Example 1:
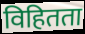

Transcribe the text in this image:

विहितता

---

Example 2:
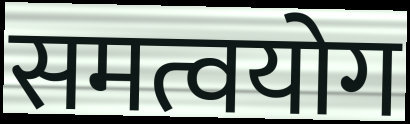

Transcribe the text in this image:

समत्वयोग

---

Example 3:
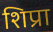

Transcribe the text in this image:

शिप्रा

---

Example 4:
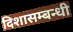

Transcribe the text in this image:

दिशासम्बन्धी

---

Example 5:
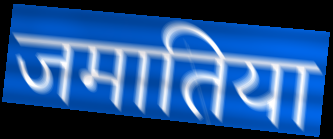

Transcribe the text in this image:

जमातिया